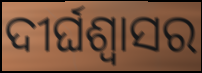
ଦୀର୍ଘଶ୍ବାସର